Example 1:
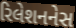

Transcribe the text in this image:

રિલેશનનેસ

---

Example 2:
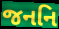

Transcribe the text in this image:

જનનિ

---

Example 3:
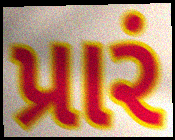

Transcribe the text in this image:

પ્રારં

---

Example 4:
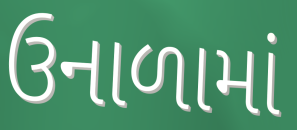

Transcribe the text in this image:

ઉનાળામાં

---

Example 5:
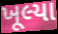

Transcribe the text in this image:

ખૂલ્યા